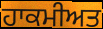
ਹਾਕਮੀਅਤ